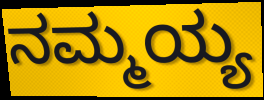
ನಮ್ಮಯ್ಯ